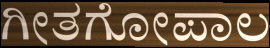
ಗೀತಗೋಪಾಲ